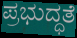
ಪ್ರಭುದ್ಧತೆ